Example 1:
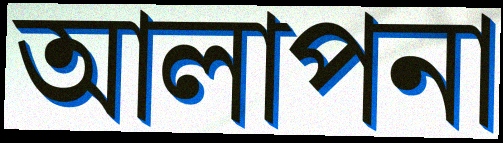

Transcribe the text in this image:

আলাপনা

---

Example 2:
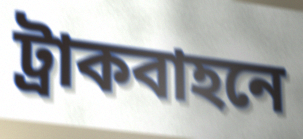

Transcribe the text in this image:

ট্রাকবাহনে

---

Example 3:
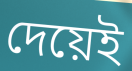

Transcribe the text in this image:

দেয়েই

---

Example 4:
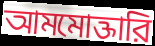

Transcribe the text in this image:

আমমোক্তারি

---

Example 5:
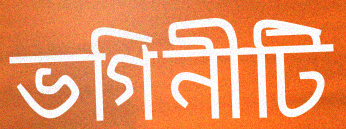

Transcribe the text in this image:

ভগিনীটি